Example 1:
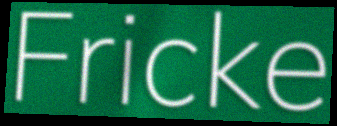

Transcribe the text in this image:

Fricke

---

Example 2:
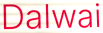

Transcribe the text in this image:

Dalwai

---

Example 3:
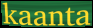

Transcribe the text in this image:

kaanta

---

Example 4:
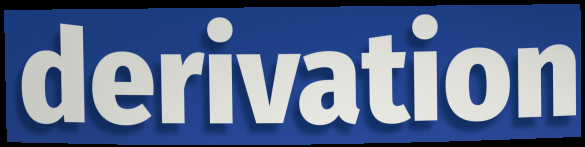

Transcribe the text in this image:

derivation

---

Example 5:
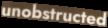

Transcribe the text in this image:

unobstructed